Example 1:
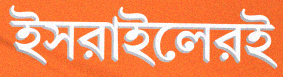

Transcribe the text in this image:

ইসরাইলেরই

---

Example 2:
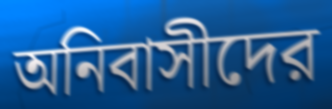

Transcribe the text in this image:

অনিবাসীদের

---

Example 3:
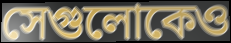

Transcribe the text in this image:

সেগুলোকেও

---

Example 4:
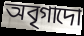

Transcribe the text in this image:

অবৃগাদো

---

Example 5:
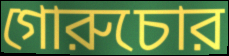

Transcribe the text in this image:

গোরুচোর